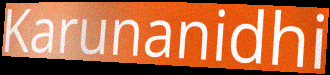
Karunanidhi